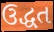
ઉદ્ધત